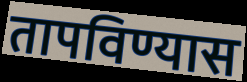
तापविण्यास